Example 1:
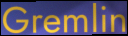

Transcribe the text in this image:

Gremlin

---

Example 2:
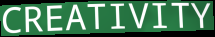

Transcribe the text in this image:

CREATIVITY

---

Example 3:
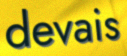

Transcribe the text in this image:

devais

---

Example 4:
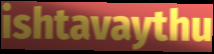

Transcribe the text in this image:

ishtavaythu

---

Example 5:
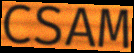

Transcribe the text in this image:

CSAM